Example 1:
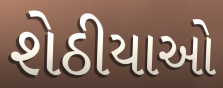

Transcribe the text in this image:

શેઠીયાઓ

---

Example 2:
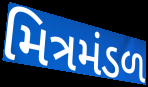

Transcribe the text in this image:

મિત્રમંડળ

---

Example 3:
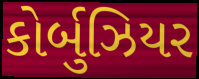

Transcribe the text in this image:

કોર્બુઝિયર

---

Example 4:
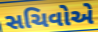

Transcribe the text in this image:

સચિવોએ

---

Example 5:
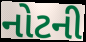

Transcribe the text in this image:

નોટની